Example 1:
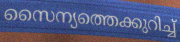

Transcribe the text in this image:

സൈന്യത്തെക്കുറിച്ച്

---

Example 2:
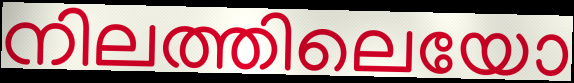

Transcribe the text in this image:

നിലത്തിലെയോ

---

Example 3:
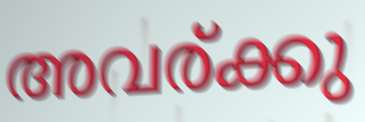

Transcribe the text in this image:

അവര്ക്കു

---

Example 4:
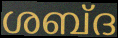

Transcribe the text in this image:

ശബ്‌ദ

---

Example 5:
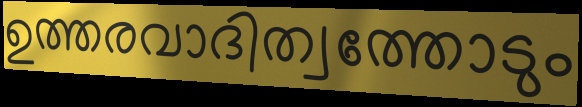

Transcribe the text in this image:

ഉത്തരവാദിത്വത്തോടും